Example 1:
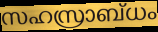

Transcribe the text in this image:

സഹസ്രാബ്ധം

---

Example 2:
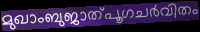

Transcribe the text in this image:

മുഖാംബുജാത്പൂഗചർവിതം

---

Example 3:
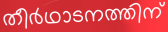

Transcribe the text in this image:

തീർഥാടനത്തിന്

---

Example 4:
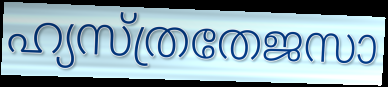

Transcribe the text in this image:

ഹ്യസ്ത്രതേജസാ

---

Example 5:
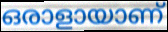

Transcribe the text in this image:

ഒരാളായാണ്